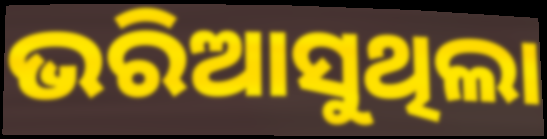
ଭରିଆସୁଥିଲା